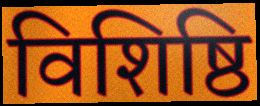
विशिष्ठि